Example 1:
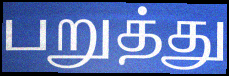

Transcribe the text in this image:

பறுத்து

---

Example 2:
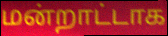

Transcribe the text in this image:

மன்றாட்டாக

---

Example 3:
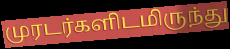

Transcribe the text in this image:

முரடர்களிடமிருந்து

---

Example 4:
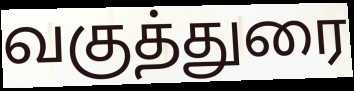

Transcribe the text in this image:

வகுத்துரை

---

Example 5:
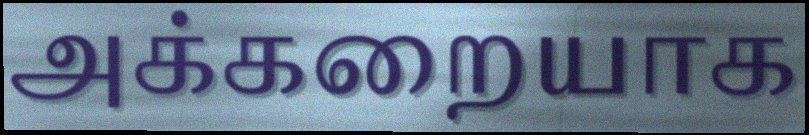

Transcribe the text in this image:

அக்கறையாக